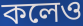
কলেও